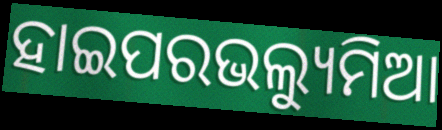
ହାଇପରଭଲ୍ୟୁମିଆ